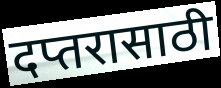
दप्तरासाठी